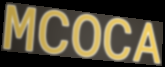
MCOCA